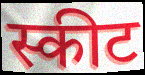
स्कीट